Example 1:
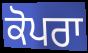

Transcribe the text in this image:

ਕੋਪਰਾ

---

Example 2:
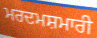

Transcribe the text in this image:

ਮਰਦਮਸ਼ਮਾਰੀ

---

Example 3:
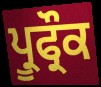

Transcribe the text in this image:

ਪ੍ਰੂਫ੍ਰੌਕ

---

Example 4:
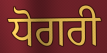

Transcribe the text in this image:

ਧੋਗਰੀ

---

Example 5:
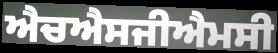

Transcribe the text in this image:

ਐਚਐਸਜੀਐਮਸੀ